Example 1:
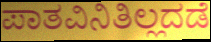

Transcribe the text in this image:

ಪಾತವಿನಿತಿಲ್ಲದಡೆ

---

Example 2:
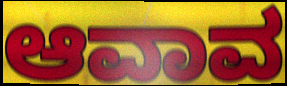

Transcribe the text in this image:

ಆವಾವ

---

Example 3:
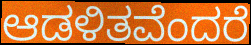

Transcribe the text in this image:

ಆಡಳಿತವೆಂದರೆ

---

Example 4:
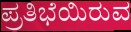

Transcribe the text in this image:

ಪ್ರತಿಭೆಯಿರುವ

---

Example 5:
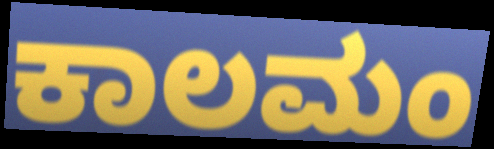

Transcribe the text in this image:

ಕಾಲಮಂ